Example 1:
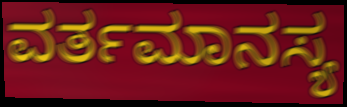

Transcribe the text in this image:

ವರ್ತಮಾನಸ್ಯ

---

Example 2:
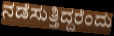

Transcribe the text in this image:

ನಡೆಸುತ್ತಿದ್ದರೆಂದು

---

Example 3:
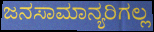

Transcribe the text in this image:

ಜನಸಾಮಾನ್ಯರಿಗಲ್ಲ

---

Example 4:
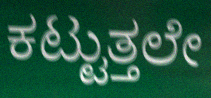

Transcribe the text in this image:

ಕಟ್ಟುತ್ತಲೇ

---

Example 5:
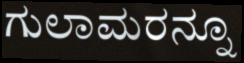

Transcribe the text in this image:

ಗುಲಾಮರನ್ನೂ